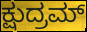
ಕ್ಷುದ್ರಮ್